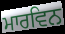
ਮਾਰਵਿਨ